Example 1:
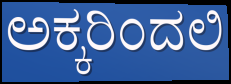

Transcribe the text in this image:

ಅಕ್ಕರಿಂದಲಿ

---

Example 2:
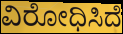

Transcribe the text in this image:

ವಿರೋಧಿಸಿದೆ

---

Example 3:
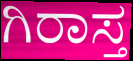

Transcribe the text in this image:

ಗಿರಾಸ್ತ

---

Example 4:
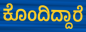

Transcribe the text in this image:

ಕೊಂದಿದ್ದಾರೆ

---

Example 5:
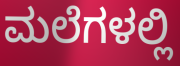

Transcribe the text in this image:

ಮಲೆಗಳಲ್ಲಿ